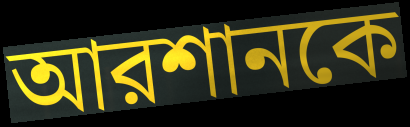
আরশানকে